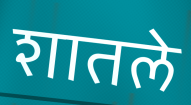
शातले